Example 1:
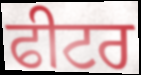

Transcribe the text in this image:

ਫੀਟਰ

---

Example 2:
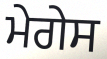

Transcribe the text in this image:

ਮੇਗੇਸ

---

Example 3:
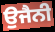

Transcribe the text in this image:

ਉਜੈਨੀ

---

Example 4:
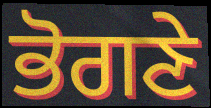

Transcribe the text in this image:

ਭੋਗਣੇ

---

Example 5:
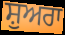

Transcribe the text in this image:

ਸ਼ੁਅਰਾ